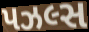
પઝલ્સ